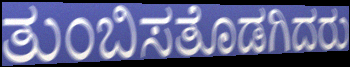
ತುಂಬಿಸತೊಡಗಿದರು